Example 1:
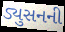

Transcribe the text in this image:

ડ્યુસનની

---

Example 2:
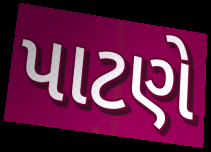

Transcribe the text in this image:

પાટણે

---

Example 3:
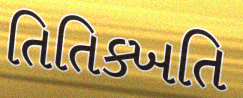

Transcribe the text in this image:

તિતિક્ખતિ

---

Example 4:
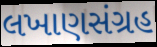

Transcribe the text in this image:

લખાણસંગ્રહ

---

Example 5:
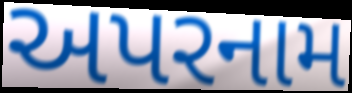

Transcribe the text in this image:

અપરનામ